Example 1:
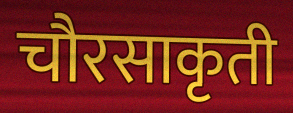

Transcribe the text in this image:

चौरसाकृती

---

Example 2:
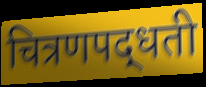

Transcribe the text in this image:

चित्रणपद्धती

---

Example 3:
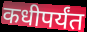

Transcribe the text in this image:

कधीपर्यंत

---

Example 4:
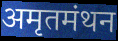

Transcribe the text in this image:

अमृतमंथन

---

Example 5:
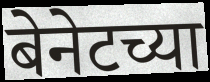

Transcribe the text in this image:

बेनेटच्या